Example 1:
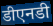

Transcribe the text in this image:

डीएनडी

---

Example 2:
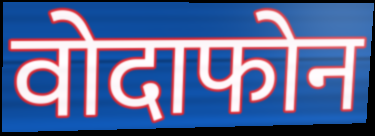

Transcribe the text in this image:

वोदाफोन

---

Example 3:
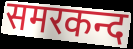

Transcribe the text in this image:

समरकन्द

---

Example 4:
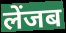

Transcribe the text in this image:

लेंजब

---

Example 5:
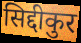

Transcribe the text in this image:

सिद्दीकुर